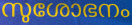
സുശോഭനം